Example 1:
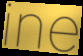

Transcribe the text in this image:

ine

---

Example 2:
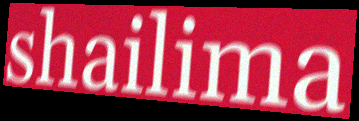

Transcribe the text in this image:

shailima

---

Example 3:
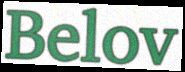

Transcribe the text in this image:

Belov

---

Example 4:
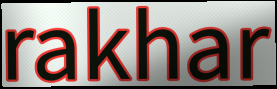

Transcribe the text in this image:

rakhar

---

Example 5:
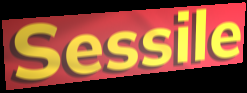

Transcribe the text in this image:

Sessile